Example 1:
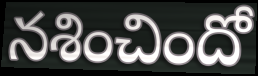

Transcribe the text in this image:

నశించిందో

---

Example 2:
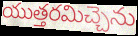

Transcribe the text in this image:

యుత్తరమిచ్చెను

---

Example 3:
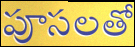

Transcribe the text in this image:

పూసలతో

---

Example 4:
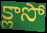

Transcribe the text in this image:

క్లాసో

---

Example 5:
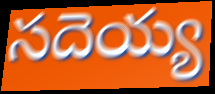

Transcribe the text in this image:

సదెయ్య